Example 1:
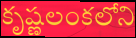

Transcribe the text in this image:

కృష్ణలంకలోని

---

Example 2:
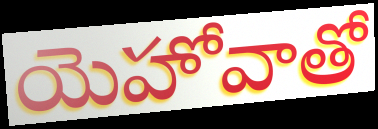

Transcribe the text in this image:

యెహోవాతో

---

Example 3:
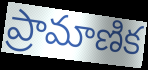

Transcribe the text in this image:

ప్రామాణిక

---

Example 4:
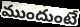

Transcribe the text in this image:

ముందుంటే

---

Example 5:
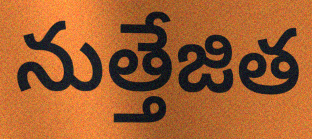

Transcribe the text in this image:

నుత్తేజిత